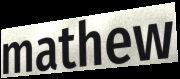
mathew